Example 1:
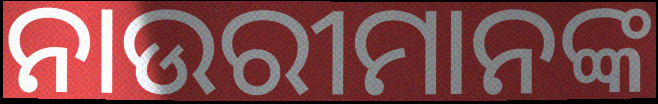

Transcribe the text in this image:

ନାଉରୀମାନଙ୍କ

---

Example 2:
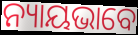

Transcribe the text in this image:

ନ୍ୟାୟଭାବେ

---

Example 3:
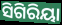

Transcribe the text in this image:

ସିଗିରିୟା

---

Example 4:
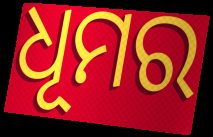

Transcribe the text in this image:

ଧୂମର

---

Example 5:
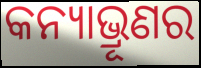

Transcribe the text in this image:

କନ୍ୟାଭ୍ରୂଣର